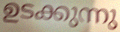
ഉടക്കുന്നു